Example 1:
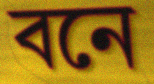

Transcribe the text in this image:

বনে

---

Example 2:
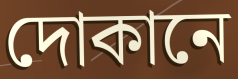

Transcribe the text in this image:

দোকানে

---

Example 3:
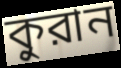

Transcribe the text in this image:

কুরান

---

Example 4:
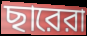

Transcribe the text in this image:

ছারেরা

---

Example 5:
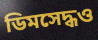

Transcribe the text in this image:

ডিমসেদ্ধও